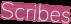
Scribes